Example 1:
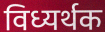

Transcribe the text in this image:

विध्यर्थक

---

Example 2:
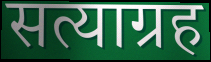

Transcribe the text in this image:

सत्याग्रह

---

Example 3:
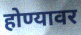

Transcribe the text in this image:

होण्यावर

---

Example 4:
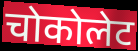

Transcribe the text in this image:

चोकोलेट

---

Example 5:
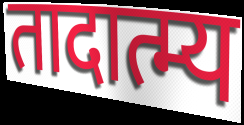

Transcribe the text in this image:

तादात्म्य